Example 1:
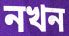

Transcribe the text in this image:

নখন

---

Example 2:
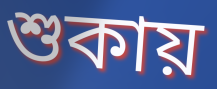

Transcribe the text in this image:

শুকায়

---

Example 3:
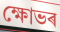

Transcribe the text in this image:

ক্ষোভৰ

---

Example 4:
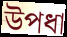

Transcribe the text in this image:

উপধা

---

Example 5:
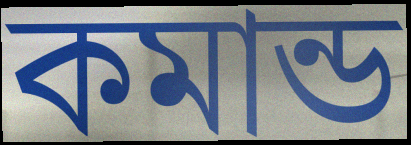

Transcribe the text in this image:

কমান্ড